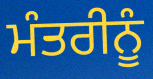
ਮੰਤਰੀਨੂੰ